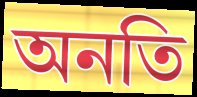
অনতি